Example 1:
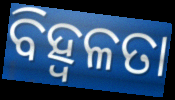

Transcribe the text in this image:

ବିହ୍ଵଳତା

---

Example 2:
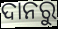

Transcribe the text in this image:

ଦାନରୁ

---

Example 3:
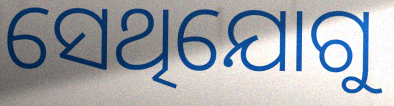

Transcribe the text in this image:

ସେଥିଯୋଗୁ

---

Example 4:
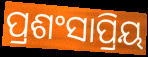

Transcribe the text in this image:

ପ୍ରଶଂସାପ୍ରିୟ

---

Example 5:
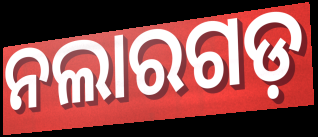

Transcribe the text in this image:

ନଲାରଗଡ଼